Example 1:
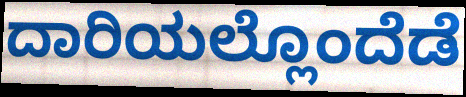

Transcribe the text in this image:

ದಾರಿಯಲ್ಲೊಂದೆಡೆ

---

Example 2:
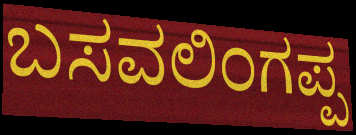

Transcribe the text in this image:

ಬಸವಲಿಂಗಪ್ಪ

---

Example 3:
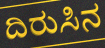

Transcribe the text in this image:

ದಿರುಸಿನ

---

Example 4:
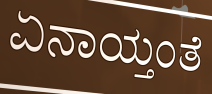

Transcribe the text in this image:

ಏನಾಯ್ತಂತೆ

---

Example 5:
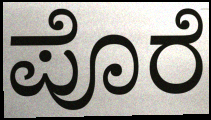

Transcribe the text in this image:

ಪೊರೆ